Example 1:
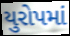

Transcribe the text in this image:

યુરોપમાં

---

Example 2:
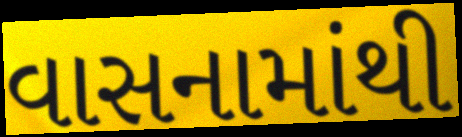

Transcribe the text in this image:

વાસનામાંથી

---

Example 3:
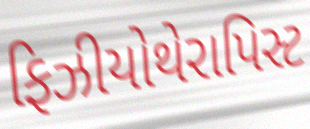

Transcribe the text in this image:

ફિઝીયોથેરાપિસ્ટ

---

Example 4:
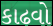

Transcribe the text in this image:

કાઢવો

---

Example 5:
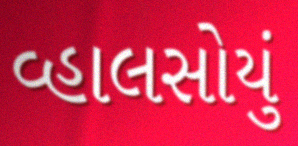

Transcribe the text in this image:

વ્હાલસોયું